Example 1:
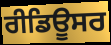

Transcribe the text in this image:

ਰੀਡਿਊਸਰ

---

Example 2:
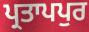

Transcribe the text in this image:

ਪ੍ਰਤਾਪਪੁਰ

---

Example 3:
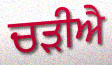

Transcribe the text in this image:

ਚੜੀਐ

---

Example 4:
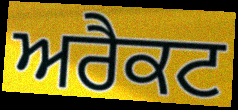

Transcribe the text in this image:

ਅਰੈਕਟ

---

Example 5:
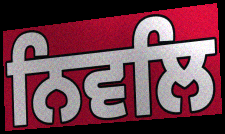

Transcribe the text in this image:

ਨਿਵਲਿ